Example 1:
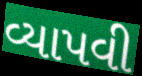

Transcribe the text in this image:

વ્યાપવી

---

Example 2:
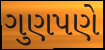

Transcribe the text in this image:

ગુણપણે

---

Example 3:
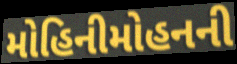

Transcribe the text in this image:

મોહિનીમોહનની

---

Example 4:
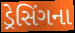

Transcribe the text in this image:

ડ્રેસિંગના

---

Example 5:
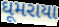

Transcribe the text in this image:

ઘૂમરાયા